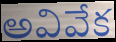
అవివేక